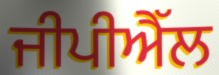
ਜੀਪੀਐੱਲ